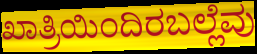
ಖಾತ್ರಿಯಿಂದಿರಬಲ್ಲೆವು